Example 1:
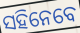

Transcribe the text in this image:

ସହିନେବେ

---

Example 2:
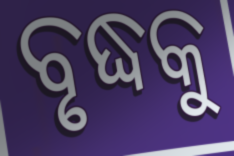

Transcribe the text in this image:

ବୃଦ୍ଧକୁ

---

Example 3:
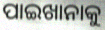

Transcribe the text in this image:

ପାଇଖାନାକୁ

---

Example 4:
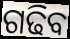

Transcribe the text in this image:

ଗଢିବ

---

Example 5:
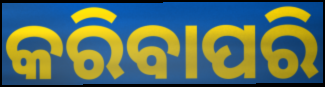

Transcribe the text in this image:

କରିବାପରି